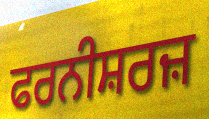
ਫਰਨੀਸ਼ਰਜ਼